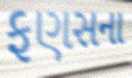
ફણસના